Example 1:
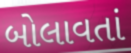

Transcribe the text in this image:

બોલાવતાં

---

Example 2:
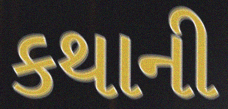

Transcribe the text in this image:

કથાની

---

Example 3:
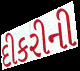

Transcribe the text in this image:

દીકરીની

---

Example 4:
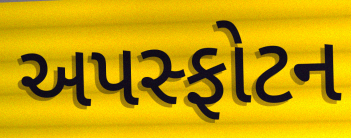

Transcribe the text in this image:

અપસ્ફોટન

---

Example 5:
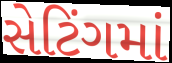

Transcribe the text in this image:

સેટિંગમાં